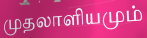
முதலாளியமும்